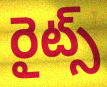
రైట్స్